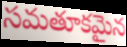
సమతూకమైన